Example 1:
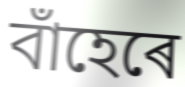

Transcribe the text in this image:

বাঁহেৰে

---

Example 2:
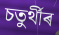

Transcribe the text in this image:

চতুৰ্থীৰ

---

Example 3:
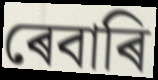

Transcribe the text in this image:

ৰেবাৰি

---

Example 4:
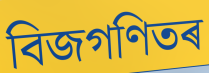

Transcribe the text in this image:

বিজগণিতৰ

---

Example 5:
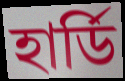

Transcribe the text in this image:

হাৰ্ডি